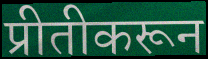
प्रीतीकरून